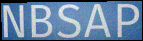
NBSAP